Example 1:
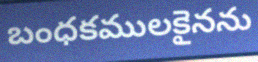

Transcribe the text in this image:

బంధకములకైనను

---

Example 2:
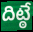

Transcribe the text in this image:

దిట్ఠే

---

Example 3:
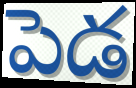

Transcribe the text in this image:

పెడ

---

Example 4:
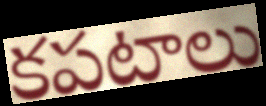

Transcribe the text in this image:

కపటాలు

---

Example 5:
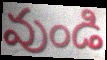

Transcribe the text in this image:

వుండి